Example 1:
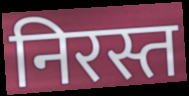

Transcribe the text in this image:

निरस्त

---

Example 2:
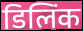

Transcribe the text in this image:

डिलिंक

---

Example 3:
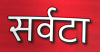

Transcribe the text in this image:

सर्वटा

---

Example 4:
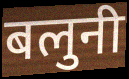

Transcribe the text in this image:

बलुनी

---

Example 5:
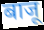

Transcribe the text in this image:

बाजू